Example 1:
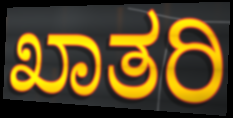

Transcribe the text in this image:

ಖಾತರಿ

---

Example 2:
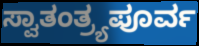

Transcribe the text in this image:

ಸ್ವಾತಂತ್ರ್ಯಪೂರ್ವ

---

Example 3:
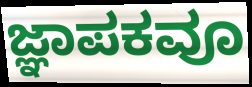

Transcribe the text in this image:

ಜ್ಞಾಪಕವೂ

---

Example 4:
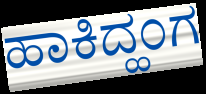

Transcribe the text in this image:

ಹಾಕಿದ್ಹಂಗ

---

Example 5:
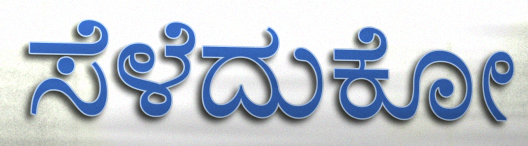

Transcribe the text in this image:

ಸೆಳೆದುಕೋ